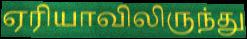
ஏரியாவிலிருந்து